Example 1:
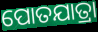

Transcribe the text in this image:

ପୋତଯାତ୍ରା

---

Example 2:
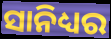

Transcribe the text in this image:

ସାନିଧ୍ୟର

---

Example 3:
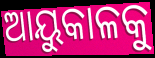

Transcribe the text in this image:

ଆୟୁକାଳକୁ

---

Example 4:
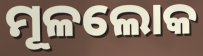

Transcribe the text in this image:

ମୂଳଲୋକ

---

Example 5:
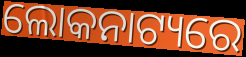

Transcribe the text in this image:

ଲୋକନାଟ୍ୟରେ